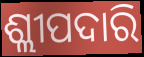
ଶ୍ଲୀପଦାରି